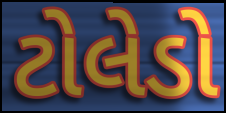
ટોલેડો